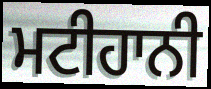
ਮਟੀਹਾਨੀ